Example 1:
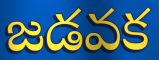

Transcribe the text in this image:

జడవక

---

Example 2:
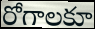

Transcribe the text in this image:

రోగాలకూ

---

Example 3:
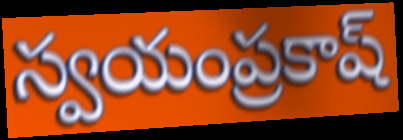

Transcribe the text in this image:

స్వయంప్రకాష్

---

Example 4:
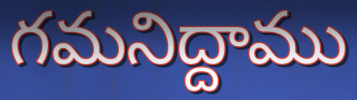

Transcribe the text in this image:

గమనిద్దాము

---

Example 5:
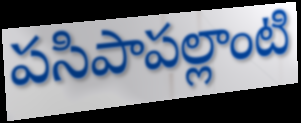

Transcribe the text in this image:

పసిపాపల్లాంటి